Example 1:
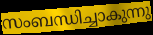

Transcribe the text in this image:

സംബന്ധിച്ചാകുന്നു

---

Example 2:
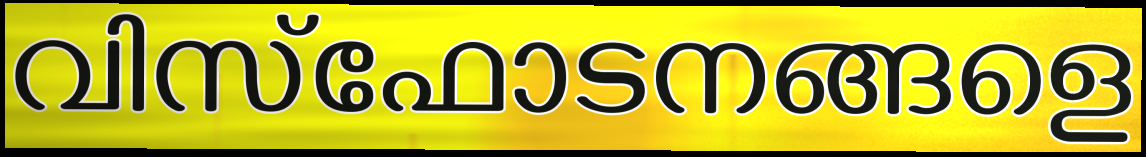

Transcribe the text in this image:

വിസ്ഫോടനങ്ങളെ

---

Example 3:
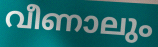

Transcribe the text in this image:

വീണാലും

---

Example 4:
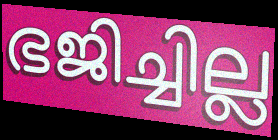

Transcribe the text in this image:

ഭജിച്ചില്ല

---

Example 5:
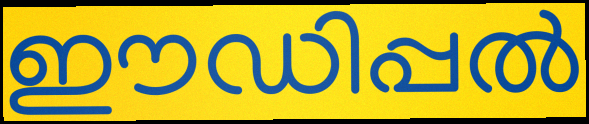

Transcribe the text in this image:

ഈഡിപ്പൽ